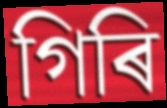
গিৰি